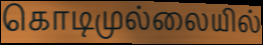
கொடிமுல்லையில்